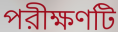
পরীক্ষণটি